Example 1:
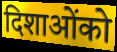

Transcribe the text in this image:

दिशाओंको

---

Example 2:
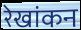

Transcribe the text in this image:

रेखांकन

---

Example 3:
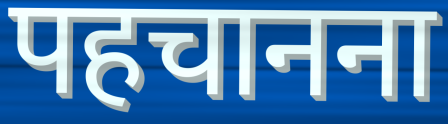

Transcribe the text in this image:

पहचानना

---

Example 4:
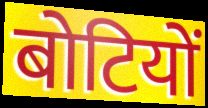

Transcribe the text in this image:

बोटियों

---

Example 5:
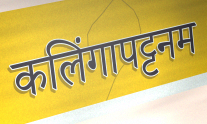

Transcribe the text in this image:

कलिंगापट्टनम